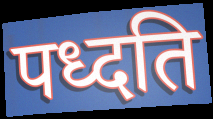
पध्दति